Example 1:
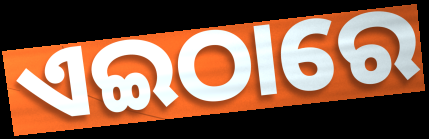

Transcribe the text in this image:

ଏଇଠାରେ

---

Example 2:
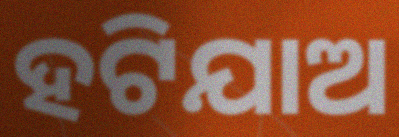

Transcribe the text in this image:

ହଟିଯାଅ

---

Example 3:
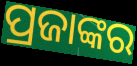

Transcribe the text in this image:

ପ୍ରଜାଙ୍କର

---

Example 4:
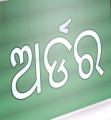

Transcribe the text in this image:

ଅର୍ଡର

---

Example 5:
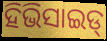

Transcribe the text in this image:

ହିଭିସାଇଡ୍